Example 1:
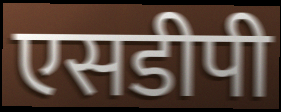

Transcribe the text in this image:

एसडीपी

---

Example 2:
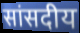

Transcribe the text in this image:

सांसदीय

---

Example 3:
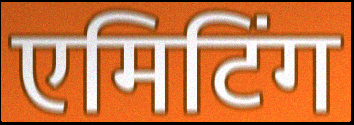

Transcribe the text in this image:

एमिटिंग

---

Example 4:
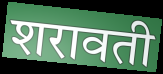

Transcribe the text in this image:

शरावती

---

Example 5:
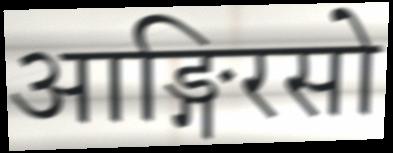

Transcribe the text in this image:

आङ्गिरसो